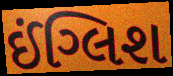
ઈંગ્લિશ